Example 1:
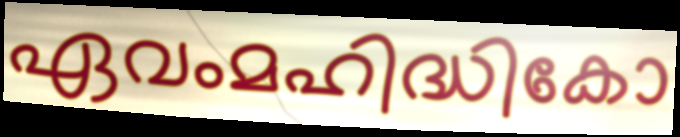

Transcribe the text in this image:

ഏവംമഹിദ്ധികോ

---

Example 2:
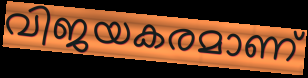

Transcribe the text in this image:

വിജയകരമാണ്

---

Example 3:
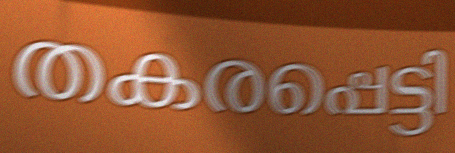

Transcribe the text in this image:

തകരപ്പെട്ടി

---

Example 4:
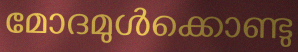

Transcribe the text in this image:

മോദമുൾക്കൊണ്ടു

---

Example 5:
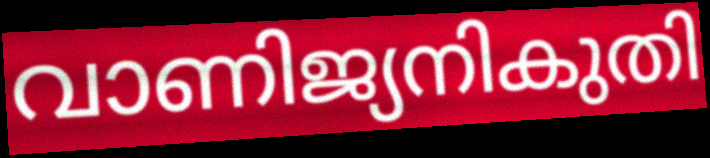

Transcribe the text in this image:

വാണിജ്യനികുതി